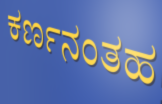
ಕರ್ಣನಂತಹ